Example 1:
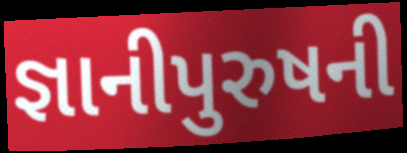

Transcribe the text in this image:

જ્ઞાનીપુરુષની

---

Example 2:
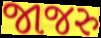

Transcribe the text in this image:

જાજરુ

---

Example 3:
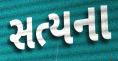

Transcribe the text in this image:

સત્યના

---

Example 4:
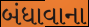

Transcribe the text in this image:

બંધાવાના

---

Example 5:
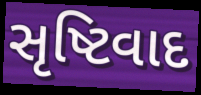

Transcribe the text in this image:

સૃષ્ટિવાદ